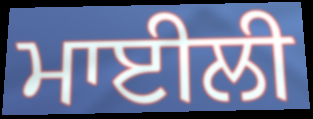
ਮਾਈਲੀ